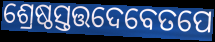
ଶ୍ରେଷ୍ଠସ୍ତତ୍ତଦେବେତପେ